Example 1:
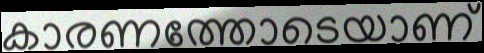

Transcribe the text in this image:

കാരണത്തോടെയാണ്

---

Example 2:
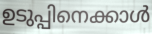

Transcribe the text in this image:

ഉടുപ്പിനെക്കാൾ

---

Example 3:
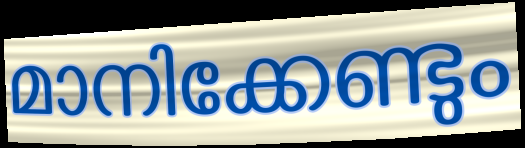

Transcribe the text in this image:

മാനിക്കേണ്ടും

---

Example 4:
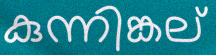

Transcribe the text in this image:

കുന്നിങ്കല്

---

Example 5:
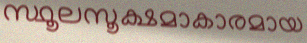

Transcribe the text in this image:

സ്ഥൂലസൂക്ഷമാകാരമായ